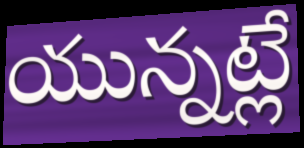
యున్నట్లే